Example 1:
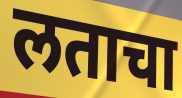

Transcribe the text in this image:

लताचा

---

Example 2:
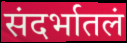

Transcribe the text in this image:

संदर्भातलं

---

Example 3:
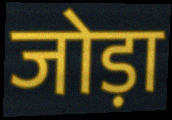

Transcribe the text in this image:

जोड़ा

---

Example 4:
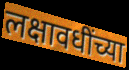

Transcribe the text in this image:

लक्षावधींच्या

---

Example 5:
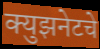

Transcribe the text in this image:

क्युझनेटचे